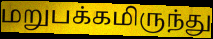
மறுபக்கமிருந்து